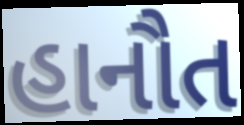
હાનૌત